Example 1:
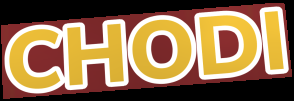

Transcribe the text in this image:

CHODI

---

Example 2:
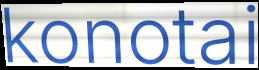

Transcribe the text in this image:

konotai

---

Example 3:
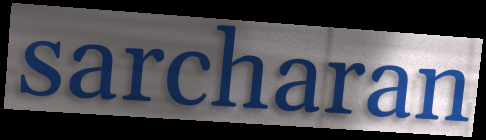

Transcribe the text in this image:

sarcharan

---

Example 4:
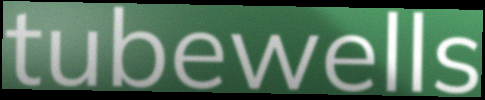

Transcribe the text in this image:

tubewells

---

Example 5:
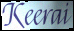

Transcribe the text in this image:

Keerai